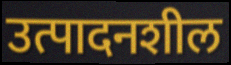
उत्पादनशील